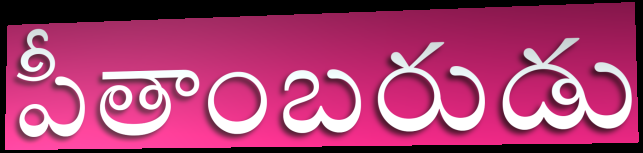
పీతాంబరుడు